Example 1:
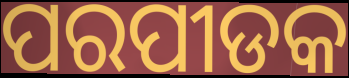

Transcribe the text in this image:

ପରପୀଡକ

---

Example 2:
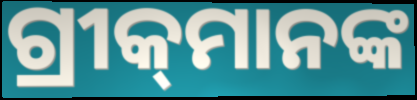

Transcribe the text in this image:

ଗ୍ରୀକ୍‌ମାନଙ୍କ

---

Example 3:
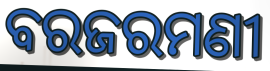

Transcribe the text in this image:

ବରଜରମଣୀ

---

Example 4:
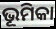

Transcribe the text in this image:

ଭୂମିକା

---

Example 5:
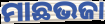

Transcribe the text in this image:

ମାଛଭଜା